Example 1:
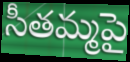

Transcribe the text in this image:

సీతమ్మపై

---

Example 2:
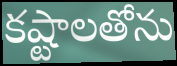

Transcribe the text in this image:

కష్టాలతోను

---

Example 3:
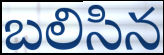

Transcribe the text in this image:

బలిసిన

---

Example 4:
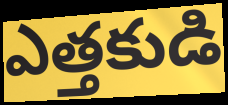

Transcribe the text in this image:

ఎత్తకుడి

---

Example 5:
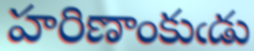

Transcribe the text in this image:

హరిణాంకుఁడు